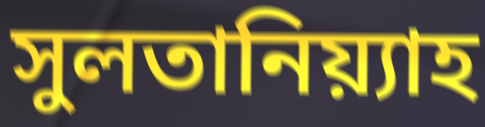
সুলতানিয়্যাহ